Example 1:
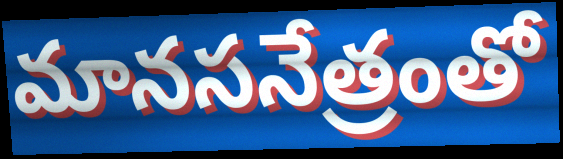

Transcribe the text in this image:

మానసనేత్రంతో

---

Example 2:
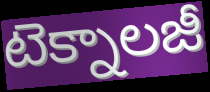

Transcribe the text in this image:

టెక్నాలజీ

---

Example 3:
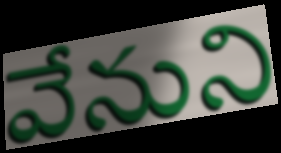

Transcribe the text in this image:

వేనుని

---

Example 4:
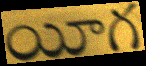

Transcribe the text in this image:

యీగ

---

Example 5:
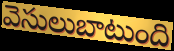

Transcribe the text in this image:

వెసులుబాటుంది